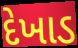
દેખાડ